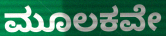
ಮೂಲಕವೇ